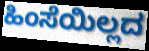
ಹಿಂಸೆಯಿಲ್ಲದ